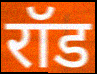
रॉड